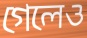
গেলেও